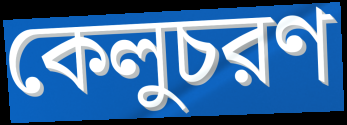
কেলুচরণ